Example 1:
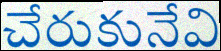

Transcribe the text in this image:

చేరుకునేవి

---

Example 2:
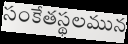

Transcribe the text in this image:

సంకేతస్థలమున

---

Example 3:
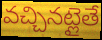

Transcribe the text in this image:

వచ్చినట్లైతే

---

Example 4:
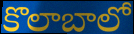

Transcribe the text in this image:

కొలాబాలో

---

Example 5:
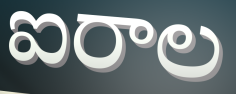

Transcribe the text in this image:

ఐరాల